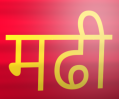
मढी